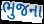
ભુજના